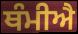
ਥੰਮੀਐ